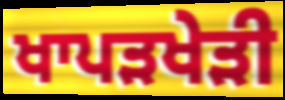
ਖਾਪੜਖੇੜੀ